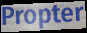
Propter